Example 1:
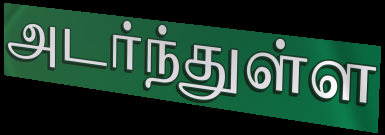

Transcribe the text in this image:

அடர்ந்துள்ள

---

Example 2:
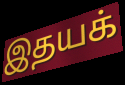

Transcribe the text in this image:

இதயக்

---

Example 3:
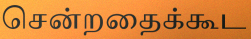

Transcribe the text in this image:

சென்றதைக்கூட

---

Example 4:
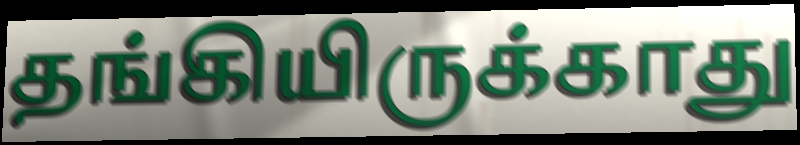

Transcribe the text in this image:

தங்கியிருக்காது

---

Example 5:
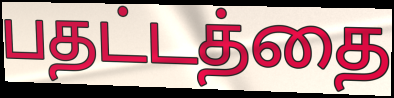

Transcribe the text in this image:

பதட்டத்தை